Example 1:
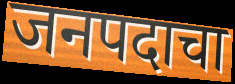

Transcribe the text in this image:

जनपदाचा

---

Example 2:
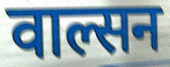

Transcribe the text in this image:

वाल्सन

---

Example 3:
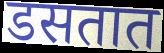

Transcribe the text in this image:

डसतात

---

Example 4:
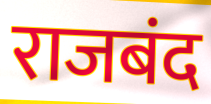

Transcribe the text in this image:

राजबंद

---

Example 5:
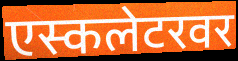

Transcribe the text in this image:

एस्कलेटरवर